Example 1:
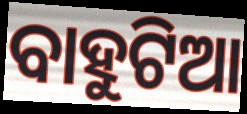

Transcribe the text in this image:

ବାହୁଟିଆ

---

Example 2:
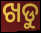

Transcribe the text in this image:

ଖଡୁ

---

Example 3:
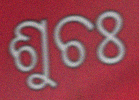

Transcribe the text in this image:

ଶୁଚଃ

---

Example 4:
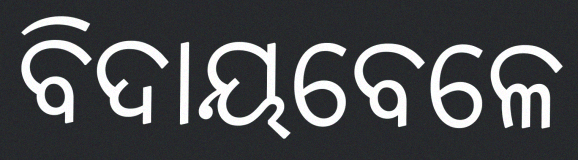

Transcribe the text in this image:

ବିଦାୟବେଳେ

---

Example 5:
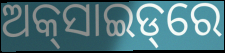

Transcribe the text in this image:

ଅକ୍‌ସାଇଡ୍‌ରେ